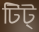
টিট্